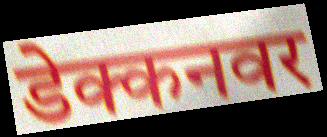
डेक्कनवर